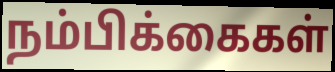
நம்பிக்கைகள்